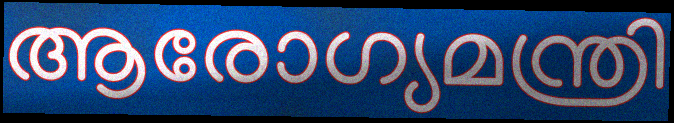
ആരോഗ്യമന്ത്രി